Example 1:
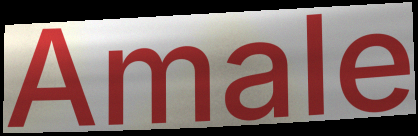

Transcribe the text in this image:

Amale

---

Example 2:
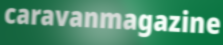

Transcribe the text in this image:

caravanmagazine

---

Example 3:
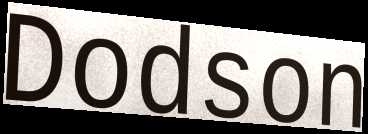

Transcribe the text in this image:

Dodson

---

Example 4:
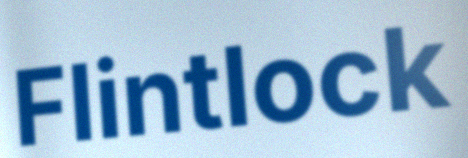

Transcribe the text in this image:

Flintlock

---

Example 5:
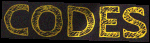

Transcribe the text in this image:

CODES